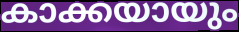
കാക്കയായും